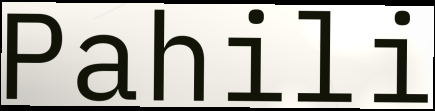
Pahili